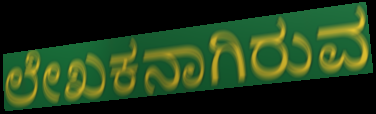
ಲೇಖಕನಾಗಿರುವ